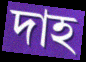
দাহ